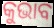
କୁଭାବ